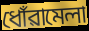
ধোঁৱামেলা